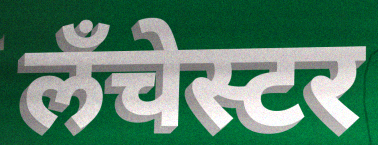
लँचेस्टर